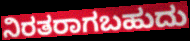
ನಿರತರಾಗಬಹುದು